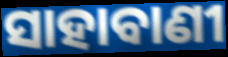
ସାହାବାଣୀ